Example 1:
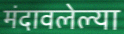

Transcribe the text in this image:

मंदावलेल्या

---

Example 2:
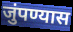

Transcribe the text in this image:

जुंपण्यास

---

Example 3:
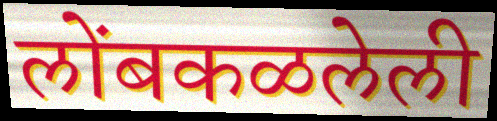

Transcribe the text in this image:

लोंबकळलेली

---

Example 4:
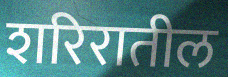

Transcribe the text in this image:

शरिरातील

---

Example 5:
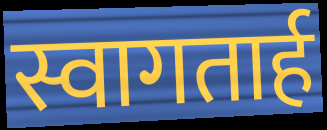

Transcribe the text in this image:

स्वागतार्ह